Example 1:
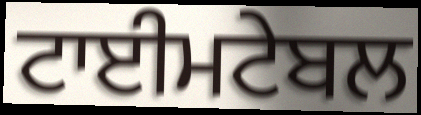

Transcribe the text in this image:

ਟਾਈਮਟੇਬਲ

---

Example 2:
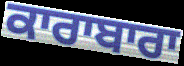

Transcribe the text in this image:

ਕਾਰਾਬਾਰਾ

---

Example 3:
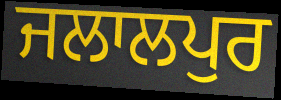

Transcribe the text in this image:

ਜਲਾਲਪੁਰ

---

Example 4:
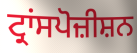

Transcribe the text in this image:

ਟ੍ਰਾਂਸਪੋਜ਼ੀਸ਼ਨ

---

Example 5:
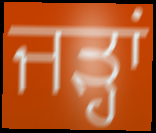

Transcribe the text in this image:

ਜੜ੍ਹਾਂ